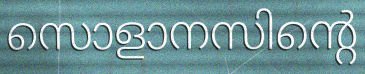
സൊളാനസിന്റെ